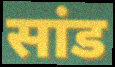
सांड